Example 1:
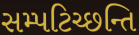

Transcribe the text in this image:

સમ્પટિચ્છન્તિ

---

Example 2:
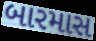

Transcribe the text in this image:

બારમાસ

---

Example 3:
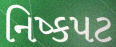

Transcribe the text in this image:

નિષ્કપટ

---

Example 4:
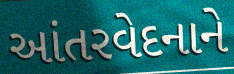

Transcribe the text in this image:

આંતરવેદનાને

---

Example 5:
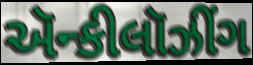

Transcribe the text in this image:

ઍન્કીલૉઝીંગ